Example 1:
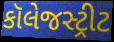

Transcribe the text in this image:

કૉલેજસ્ટ્રીટ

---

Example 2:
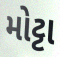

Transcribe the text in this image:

મોટ્ટા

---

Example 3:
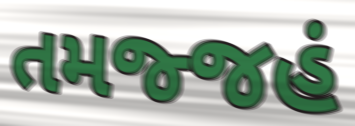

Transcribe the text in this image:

તમજ્જહં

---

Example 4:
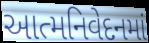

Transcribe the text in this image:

આત્મનિવેદનમાં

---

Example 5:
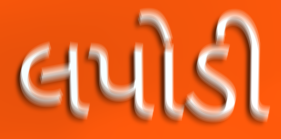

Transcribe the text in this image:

લપોડી